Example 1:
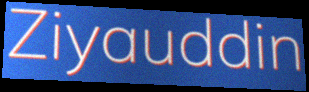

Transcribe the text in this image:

Ziyauddin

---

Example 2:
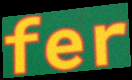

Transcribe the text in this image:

fer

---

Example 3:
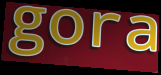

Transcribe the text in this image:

gora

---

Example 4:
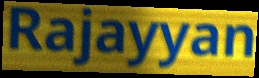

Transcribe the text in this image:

Rajayyan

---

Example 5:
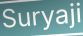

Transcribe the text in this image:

Suryaji